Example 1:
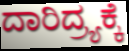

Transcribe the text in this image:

ದಾರಿದ್ರ್ಯಕ್ಕೆ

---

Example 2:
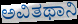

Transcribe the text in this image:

ಅವಿತಥಾನಿ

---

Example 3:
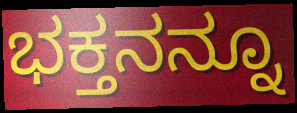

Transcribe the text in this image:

ಭಕ್ತನನ್ನೂ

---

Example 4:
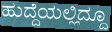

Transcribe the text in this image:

ಹುದ್ದೆಯಲ್ಲಿದ್ದೂ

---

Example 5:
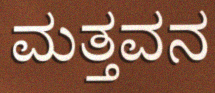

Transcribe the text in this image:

ಮತ್ತವನ